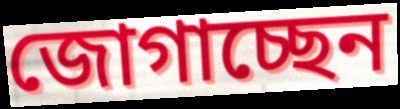
জোগাচ্ছেন